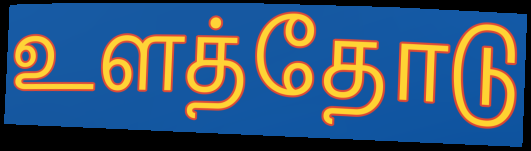
உளத்தோடு